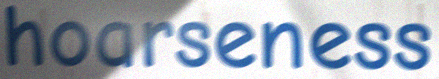
hoarseness